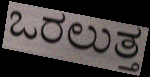
ಒರಲುತ್ತ